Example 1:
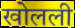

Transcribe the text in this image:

खोलली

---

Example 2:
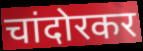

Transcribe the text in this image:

चांदोरकर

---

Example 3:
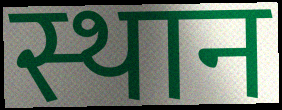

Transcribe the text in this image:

स्थान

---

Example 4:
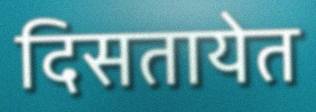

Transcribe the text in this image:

दिसतायेत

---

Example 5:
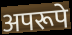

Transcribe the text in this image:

अपरूपे